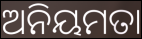
ଅନିୟମତା